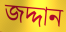
জদ্দান